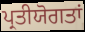
ਪ੍ਰਤੀਯੋਗਤਾਂ